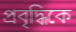
প্রবৃদ্ধিকে